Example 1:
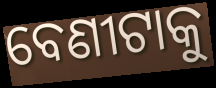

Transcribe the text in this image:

ବେଣୀଟାକୁ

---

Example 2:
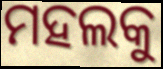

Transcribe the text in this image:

ମହଲକୁ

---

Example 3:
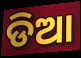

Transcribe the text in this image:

ଡିଆ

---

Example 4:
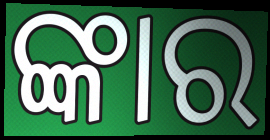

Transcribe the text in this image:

ଙ୍କାର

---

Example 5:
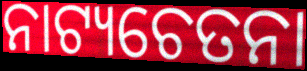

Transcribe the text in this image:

ନାଟ୍ୟଚେତନା